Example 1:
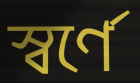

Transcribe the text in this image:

স্বর্ণে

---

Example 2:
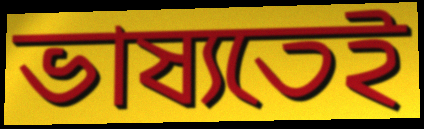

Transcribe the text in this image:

ভাষ্যতেই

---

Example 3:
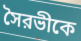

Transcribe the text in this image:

সৈরভীকে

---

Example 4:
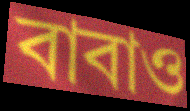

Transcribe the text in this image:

বাবাও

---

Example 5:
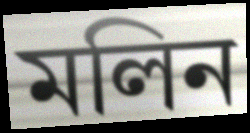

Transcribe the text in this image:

মলিন